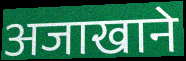
अजाखाने